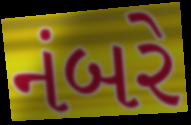
નંબરે